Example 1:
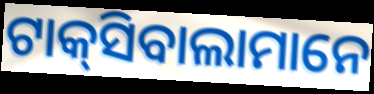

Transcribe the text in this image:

ଟାକ୍‌ସିବାଲାମାନେ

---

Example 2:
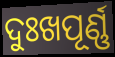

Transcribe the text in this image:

ଦୁଃଖପୂର୍ଣ୍ଣ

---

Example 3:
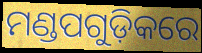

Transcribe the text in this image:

ମଣ୍ଡପଗୁଡ଼ିକରେ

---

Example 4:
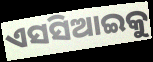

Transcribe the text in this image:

ଏସସିଆଇକୁ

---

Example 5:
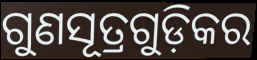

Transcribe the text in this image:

ଗୁଣସୂତ୍ରଗୁଡ଼ିକର